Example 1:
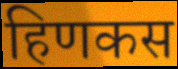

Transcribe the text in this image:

हिणकस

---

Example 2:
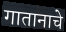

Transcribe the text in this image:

गातानाचे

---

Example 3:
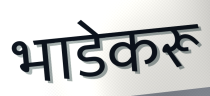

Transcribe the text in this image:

भाडेकरू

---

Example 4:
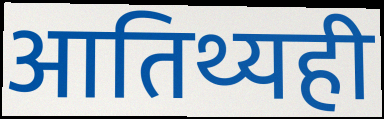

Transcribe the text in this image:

आतिथ्यही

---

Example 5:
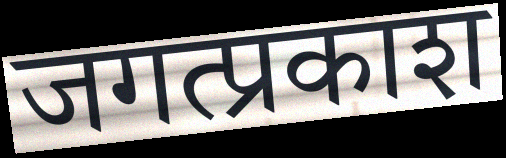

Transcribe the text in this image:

जगत्प्रकाश